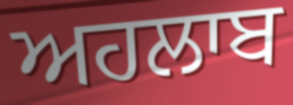
ਅਹਲਾਬ